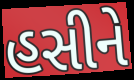
હસીને